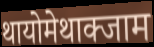
थायोमेथाक्जाम